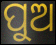
ପୁଅ